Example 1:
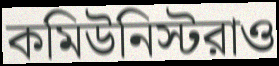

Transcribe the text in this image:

কমিউনিস্টরাও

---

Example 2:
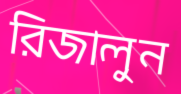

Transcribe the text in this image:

রিজালুন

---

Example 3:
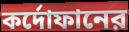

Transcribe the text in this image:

কর্দোফানের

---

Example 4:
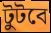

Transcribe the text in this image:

টুটবে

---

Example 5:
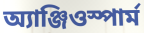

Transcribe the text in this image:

অ্যাঞ্জিওস্পার্ম